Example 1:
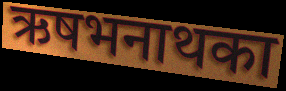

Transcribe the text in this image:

ऋषभनाथका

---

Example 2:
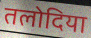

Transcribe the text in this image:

तलोदिया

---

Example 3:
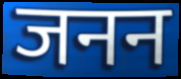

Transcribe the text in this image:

जनन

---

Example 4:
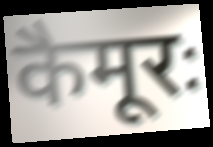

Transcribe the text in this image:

कैमूरः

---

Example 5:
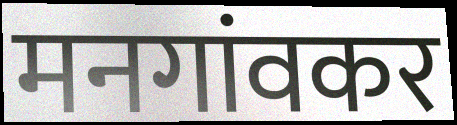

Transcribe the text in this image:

मनगांवकर